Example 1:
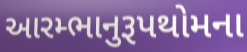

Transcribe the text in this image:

આરમ્ભાનુરૂપથોમના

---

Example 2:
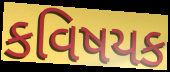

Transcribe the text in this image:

કવિષયક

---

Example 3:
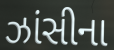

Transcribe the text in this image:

ઝાંસીના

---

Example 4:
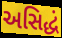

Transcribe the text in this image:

અસિદ્ધં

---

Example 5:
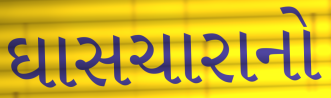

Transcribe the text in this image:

ઘાસચારાનો